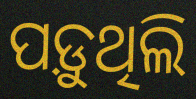
ପଡ଼ୁଥିଲି